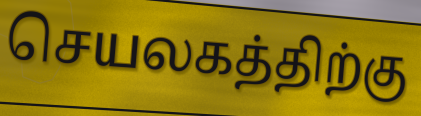
செயலகத்திற்கு